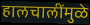
हालचालींमुळे